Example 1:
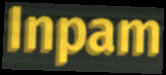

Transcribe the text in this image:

Inpam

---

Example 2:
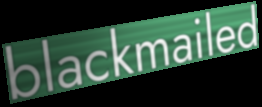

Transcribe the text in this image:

blackmailed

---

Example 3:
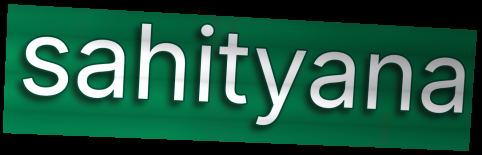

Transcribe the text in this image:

sahityana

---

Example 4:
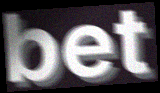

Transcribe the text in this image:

bet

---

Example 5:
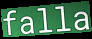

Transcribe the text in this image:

falla